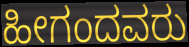
ಹೀಗಂದವರು